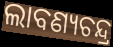
ଲାବଣ୍ୟଚନ୍ଦ୍ର